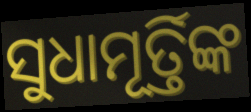
ସୁଧାମୂର୍ତ୍ତିଙ୍କ